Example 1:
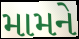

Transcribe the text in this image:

મામને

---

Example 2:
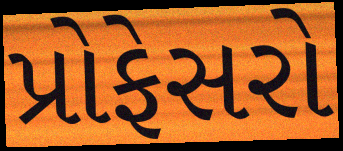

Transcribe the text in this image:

પ્રોફેસરો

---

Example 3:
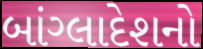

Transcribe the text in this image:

બાંગ્લાદેશનો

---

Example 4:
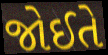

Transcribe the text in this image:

જોઈતે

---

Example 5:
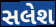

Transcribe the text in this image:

સલેશ